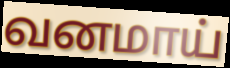
வனமாய்